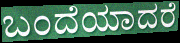
ಬಂದೆಯಾದರೆ